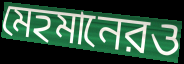
মেহমানেরও